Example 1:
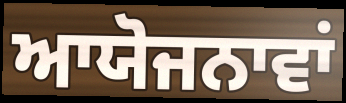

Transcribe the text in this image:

ਆਯੋਜਨਾਵਾਂ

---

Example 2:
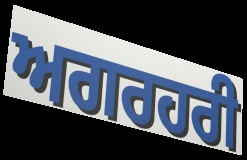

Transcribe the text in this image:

ਅਗਰਹਰੀ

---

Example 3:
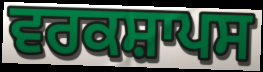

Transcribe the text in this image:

ਵਰਕਸ਼ਾਪਸ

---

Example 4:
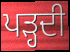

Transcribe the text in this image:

ਪਡ਼੍ਹਦੀ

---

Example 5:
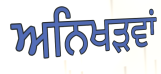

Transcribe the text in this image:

ਅਨਿਖੜਵਾਂ